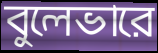
বুলেভারে